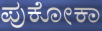
ಪುಕೋಕಾ